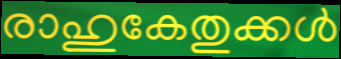
രാഹുകേതുക്കൾ